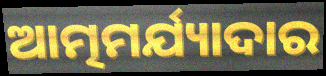
ଆତ୍ମମର୍ଯ୍ୟାଦାର